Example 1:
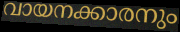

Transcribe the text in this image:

വായനക്കാരനും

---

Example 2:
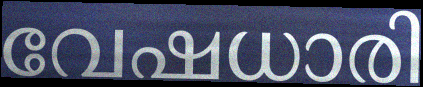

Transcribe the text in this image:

വേഷധാരി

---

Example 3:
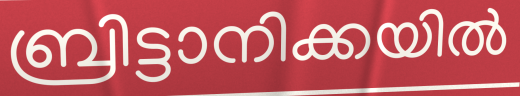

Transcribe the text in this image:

ബ്രിട്ടാനിക്കയിൽ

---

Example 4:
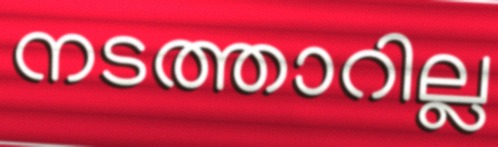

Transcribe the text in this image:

നടത്താറില്ല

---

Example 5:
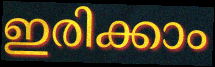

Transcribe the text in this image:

ഇരിക്കാം